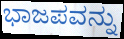
ಭಾಜಪವನ್ನು